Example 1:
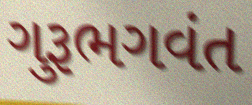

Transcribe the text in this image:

ગુરૂભગવંત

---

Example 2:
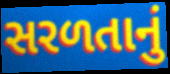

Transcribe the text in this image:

સરળતાનું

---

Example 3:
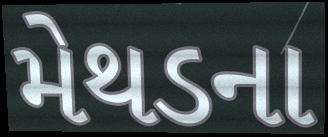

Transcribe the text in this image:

મેથડના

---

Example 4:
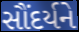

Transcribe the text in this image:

સૌંદર્યને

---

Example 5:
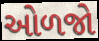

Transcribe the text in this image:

ઓળજો